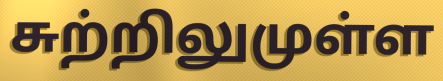
சுற்றிலுமுள்ள